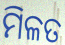
ମିଳତ